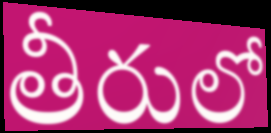
తీరులో